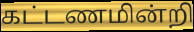
கட்டணமின்றி